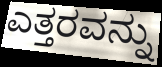
ಎತ್ತರವನ್ನು